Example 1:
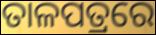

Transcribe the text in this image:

ତାଳପତ୍ରରେ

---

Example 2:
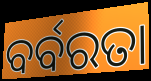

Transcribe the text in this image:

ବର୍ବରତା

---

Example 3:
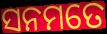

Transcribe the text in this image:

ସନମତେ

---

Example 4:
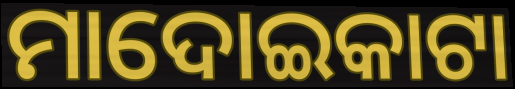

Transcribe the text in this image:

ମାଦୋଇକାଟା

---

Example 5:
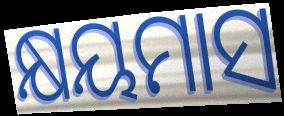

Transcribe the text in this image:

କ୍ଷୟମାସ